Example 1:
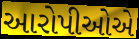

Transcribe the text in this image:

આરોપીઓએ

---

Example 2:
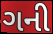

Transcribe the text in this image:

ગની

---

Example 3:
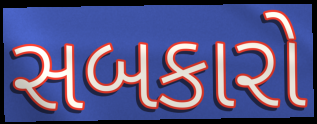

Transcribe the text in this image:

સબકારો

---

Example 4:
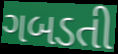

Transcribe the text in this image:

ગબડતી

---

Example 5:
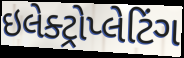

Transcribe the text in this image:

ઇલેક્ટ્રોપ્લેટિંગ